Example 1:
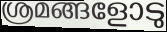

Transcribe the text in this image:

ശ്രമങ്ങളോടു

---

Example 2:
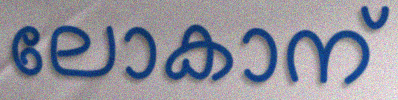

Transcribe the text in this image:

ലോകാന്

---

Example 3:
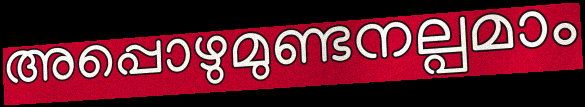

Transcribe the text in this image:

അപ്പൊഴുമുണ്ടനല്പമാം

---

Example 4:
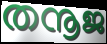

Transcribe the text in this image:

തനൂജ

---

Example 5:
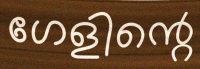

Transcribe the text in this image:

ഗേളിന്റെ